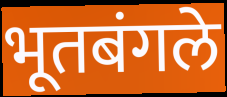
भूतबंगले